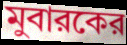
মুবারকের